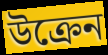
উক্রেন